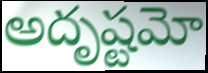
అదృష్టమో